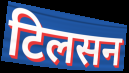
टिलसन